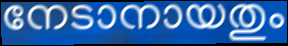
നേടാനായതും